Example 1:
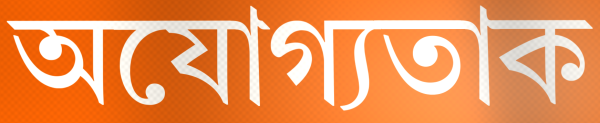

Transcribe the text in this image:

অযোগ্যতাক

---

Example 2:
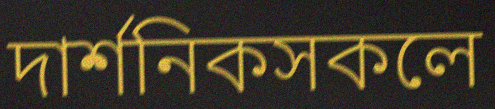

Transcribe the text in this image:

দাৰ্শনিকসকলে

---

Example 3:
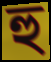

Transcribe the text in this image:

হু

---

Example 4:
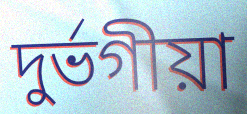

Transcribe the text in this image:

দুৰ্ভগীয়া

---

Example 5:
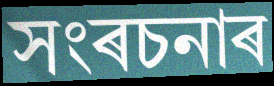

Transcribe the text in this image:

সংৰচনাৰ